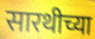
सारथीच्या